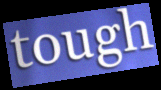
tough